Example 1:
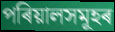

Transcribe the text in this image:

পৰিয়ালসমূহৰ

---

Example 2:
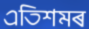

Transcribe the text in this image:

এতিশমৰ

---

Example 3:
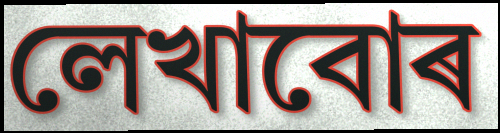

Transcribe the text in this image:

লেখাবোৰ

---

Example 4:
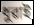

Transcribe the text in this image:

ধুৱাই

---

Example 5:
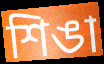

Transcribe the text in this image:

শিঙা